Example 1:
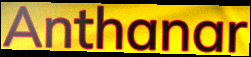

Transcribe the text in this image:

Anthanar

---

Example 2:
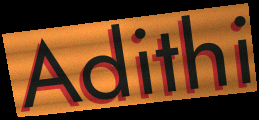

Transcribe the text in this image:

Adithi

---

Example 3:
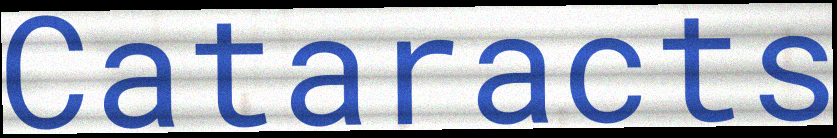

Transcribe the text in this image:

Cataracts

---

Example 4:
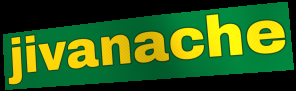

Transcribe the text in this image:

jivanache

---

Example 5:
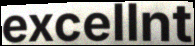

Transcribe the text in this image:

excellnt